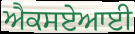
ਐਕਸਏਆਈ